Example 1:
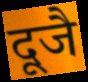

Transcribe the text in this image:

दूजै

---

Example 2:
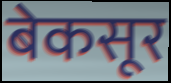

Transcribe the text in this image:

बेकसूर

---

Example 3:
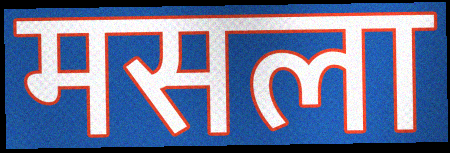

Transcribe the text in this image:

मसला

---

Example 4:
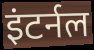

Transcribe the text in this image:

इंटर्नल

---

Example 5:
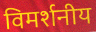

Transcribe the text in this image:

विमर्शनीय